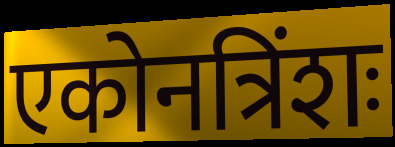
एकोनत्रिंशः